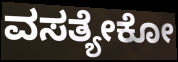
ವಸತ್ಯೇಕೋ